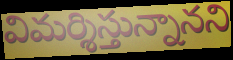
విమర్శిస్తున్నానని